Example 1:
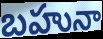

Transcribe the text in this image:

బహునా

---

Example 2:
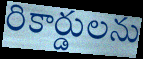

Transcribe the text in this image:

రికార్డులను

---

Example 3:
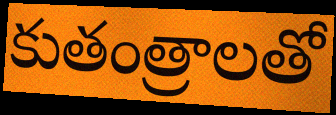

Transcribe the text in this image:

కుతంత్రాలతో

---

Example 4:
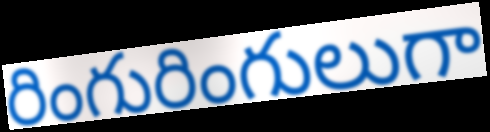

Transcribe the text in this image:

రింగురింగులుగా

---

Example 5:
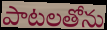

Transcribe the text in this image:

పాటలతోను